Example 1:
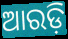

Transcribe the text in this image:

ଆରଡ଼ି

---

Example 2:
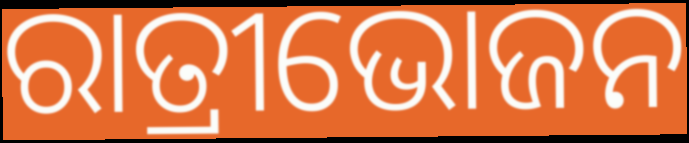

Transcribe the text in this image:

ରାତ୍ରୀଭୋଜନ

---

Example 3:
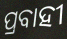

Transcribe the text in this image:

ପ୍ରବାହୀ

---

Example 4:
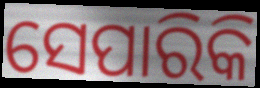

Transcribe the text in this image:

ସେପାରିକି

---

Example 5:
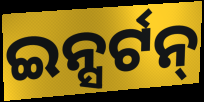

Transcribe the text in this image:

ଇନ୍ସର୍ଟନ୍